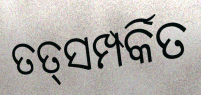
ତତ୍‌ସମ୍ପର୍କିତ